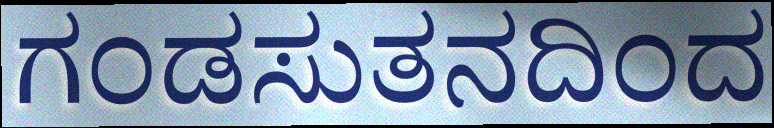
ಗಂಡಸುತನದಿಂದ